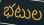
భటుల